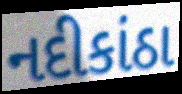
નદીકાંઠા